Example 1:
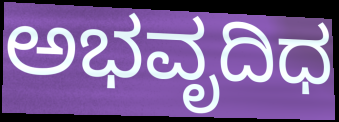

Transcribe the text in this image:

ಅಭವೃದಿಧ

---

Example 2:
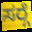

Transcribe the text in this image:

ಸರ್‍ಗೆ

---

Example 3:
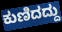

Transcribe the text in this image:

ಕುಣಿದದ್ದು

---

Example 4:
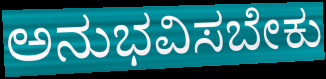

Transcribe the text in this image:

ಅನುಭವಿಸಬೇಕು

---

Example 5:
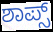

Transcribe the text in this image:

ಶಾಪ್ಸ್